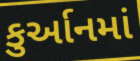
કુર્આનમાં